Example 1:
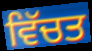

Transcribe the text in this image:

ਵਿੱਚਤ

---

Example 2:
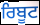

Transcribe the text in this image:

ਰਿਬੂਟ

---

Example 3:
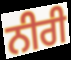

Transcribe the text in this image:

ਨੀਰੀ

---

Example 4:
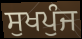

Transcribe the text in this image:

ਸੁਖਪੁੰਜ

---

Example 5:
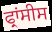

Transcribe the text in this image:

ਫ੍ਰਾਂਸੀਸ